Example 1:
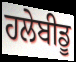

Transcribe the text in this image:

ਹਲੇਬੀਡੂ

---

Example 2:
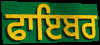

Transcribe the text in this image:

ਫਾਇਬਰ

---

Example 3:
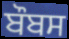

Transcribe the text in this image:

ਬੌਬਸ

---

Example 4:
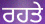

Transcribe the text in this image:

ਰਹਤੇ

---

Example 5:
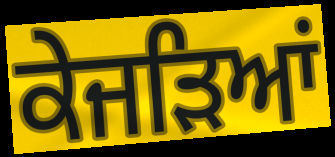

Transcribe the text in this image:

ਕੇਜੜਿਆਂ